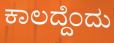
ಕಾಲದ್ದೆಂದು